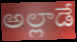
అల్లాడే